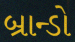
બ્રાન્ડો